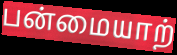
பன்மையாற்